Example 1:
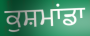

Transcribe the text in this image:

ਕੁਸ਼ਮਾਂਡਾ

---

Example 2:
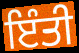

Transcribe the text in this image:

ਇੰਤੀ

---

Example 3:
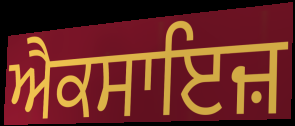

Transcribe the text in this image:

ਐਕਸਾਇਜ਼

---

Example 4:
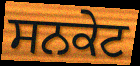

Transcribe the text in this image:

ਸਨਕੇਟ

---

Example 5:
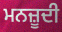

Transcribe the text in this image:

ਮਨਜ਼ੂਦੀ